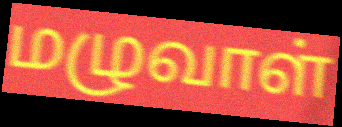
மழுவாள்